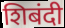
शिबंदी